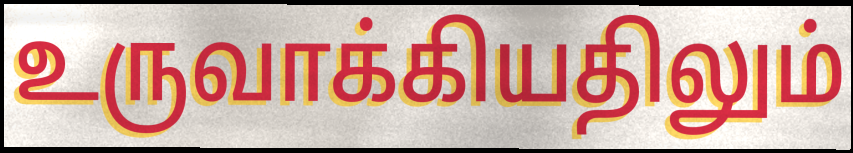
உருவாக்கியதிலும்